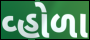
વ્હોળા